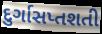
દુર્ગાસપ્તશતી